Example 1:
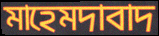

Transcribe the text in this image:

মাহেমদাবাদ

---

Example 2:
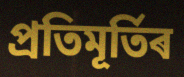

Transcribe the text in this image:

প্ৰতিমূৰ্তিৰ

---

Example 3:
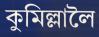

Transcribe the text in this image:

কুমিল্লালৈ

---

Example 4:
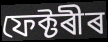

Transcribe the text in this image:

ফেক্টৰীৰ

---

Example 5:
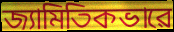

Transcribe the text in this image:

জ্যামিতিকভাৱে